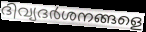
ദിവ്യദർശനങ്ങളെ